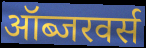
ऑब्जरवर्स